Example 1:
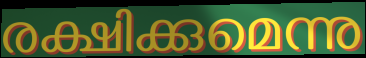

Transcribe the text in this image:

രക്ഷിക്കുമെന്നു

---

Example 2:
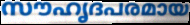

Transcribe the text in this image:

സൗഹൃദപരമായ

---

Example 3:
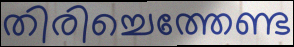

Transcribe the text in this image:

തിരിച്ചെത്തേണ്ട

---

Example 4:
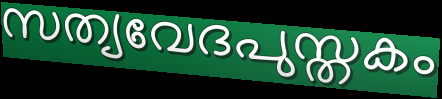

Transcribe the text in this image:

സത്യവേദപുസ്തകം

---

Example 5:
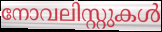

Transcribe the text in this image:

നോവലിസ്റ്റുകൾ